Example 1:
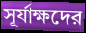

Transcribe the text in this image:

সূর্যাক্ষদের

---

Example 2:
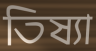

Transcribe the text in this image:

তিষ্যা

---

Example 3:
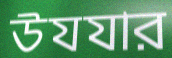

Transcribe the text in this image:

উযযার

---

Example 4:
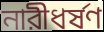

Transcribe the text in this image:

নারীধর্ষণ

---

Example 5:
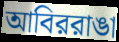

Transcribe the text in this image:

আবিররাঙা